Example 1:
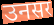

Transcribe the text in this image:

उनसर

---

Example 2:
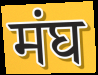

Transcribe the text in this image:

मंघ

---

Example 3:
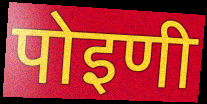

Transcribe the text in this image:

पोइणी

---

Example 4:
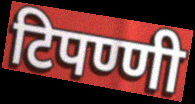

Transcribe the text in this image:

टिपण्णी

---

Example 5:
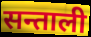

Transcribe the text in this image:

सन्ताली